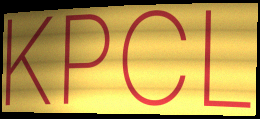
KPCL